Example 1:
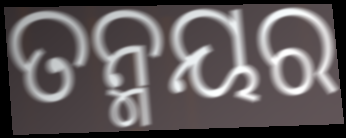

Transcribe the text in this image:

ତନ୍ମୟର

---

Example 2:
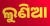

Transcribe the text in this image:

ଲୁଣିଆ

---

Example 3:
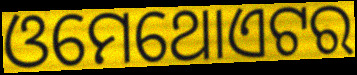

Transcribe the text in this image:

ଓମେଥୋଏଟର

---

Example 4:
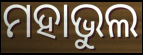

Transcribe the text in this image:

ମହାଭୁଲ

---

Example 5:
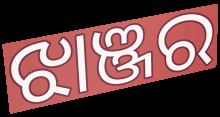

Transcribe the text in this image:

ଝାଞ୍ଜର